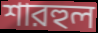
শারহুল